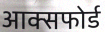
आक्सफोर्ड